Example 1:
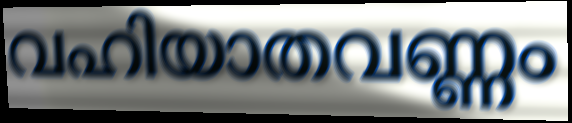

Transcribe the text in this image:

വഹിയാതവണ്ണം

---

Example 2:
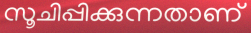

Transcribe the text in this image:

സൂചിപ്പിക്കുന്നതാണ്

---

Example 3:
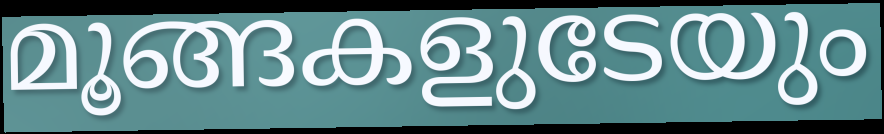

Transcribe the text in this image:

മൂങ്ങകളുടേയും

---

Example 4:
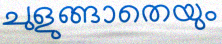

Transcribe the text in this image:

ചുളുങ്ങാതെയും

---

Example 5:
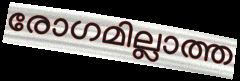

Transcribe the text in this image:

രോഗമില്ലാത്ത